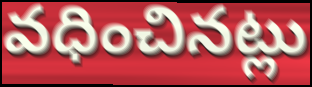
వధించినట్లు